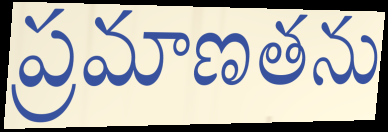
ప్రమాణతను